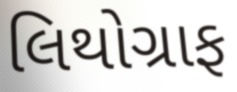
લિથોગ્રાફ